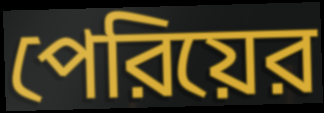
পেরিয়ের